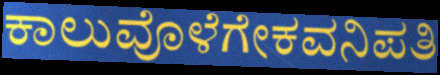
ಕಾಲುವೊಳೆಗೇಕವನಿಪತಿ